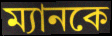
ম্যানকে